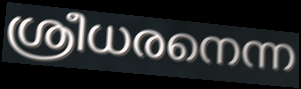
ശ്രീധരനെന്ന